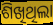
ଶିଖିଥିଲା